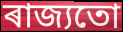
ৰাজ্যতো